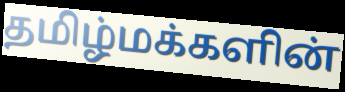
தமிழ்மக்களின்